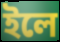
ইলে